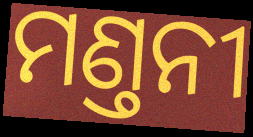
ମଣ୍ତନୀ